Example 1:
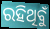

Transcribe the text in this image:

ରହିଥିବୁଁ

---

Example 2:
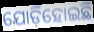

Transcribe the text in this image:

ଯୋଡ଼ିହୋଇଛି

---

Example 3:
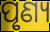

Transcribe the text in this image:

ପୃଣ୍ୟ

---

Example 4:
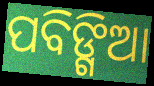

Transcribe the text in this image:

ପବିଙ୍ଗିଆ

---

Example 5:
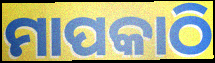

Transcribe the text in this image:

ମାପକାଠି